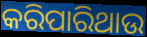
କରିପାରିଥାଉ